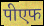
पीएफ